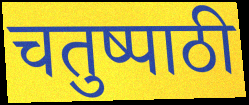
चतुष्पाठी